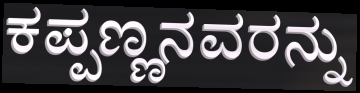
ಕಪ್ಪಣ್ಣನವರನ್ನು